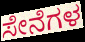
ಸೇನೆಗಳ